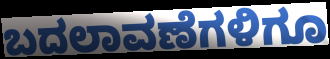
ಬದಲಾವಣೆಗಳಿಗೂ